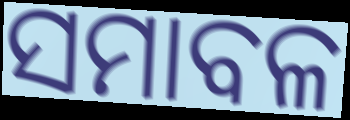
ସମାବଳ